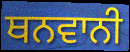
ਥਨਵਾਨੀ